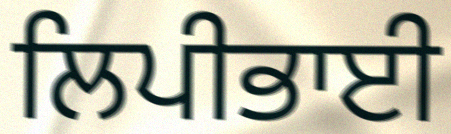
ਲਿਪੀਭਾਈ